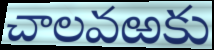
చాలవఱకు